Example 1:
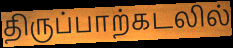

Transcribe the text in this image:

திருப்பாற்கடலில்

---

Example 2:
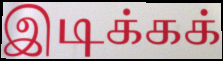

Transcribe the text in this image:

இடிக்கக்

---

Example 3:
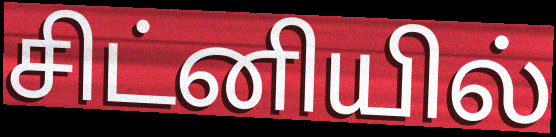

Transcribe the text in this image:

சிட்னியில்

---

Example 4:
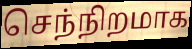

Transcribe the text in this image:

செந்நிறமாக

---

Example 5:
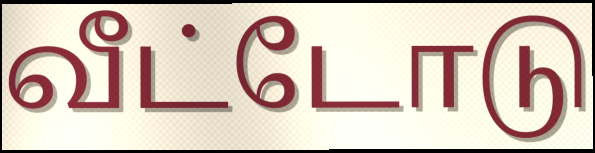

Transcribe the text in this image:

வீட்டோடு